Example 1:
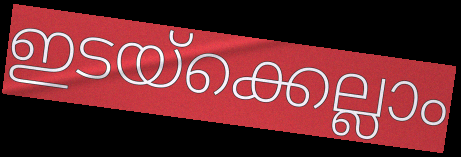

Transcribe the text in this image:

ഇടയ്ക്കെല്ലാം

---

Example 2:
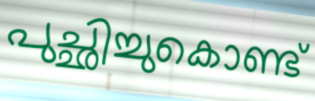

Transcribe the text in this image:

പുച്ഛിച്ചുകൊണ്ട്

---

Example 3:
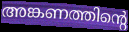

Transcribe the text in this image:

അങ്കണത്തിന്റെ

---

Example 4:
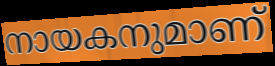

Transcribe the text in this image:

നായകനുമാണ്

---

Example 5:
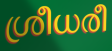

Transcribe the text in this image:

ശ്രീധരീ